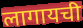
लागायची